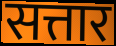
सत्तार